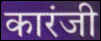
कारंजी